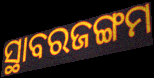
ସ୍ଥାବରଜଙ୍ଗମ